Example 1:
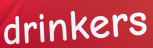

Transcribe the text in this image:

drinkers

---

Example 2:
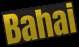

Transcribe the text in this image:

Bahai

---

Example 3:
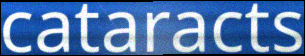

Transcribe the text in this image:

cataracts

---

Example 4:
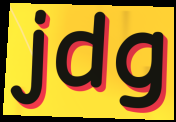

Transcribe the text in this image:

jdg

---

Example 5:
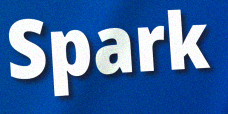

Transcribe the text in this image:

Spark